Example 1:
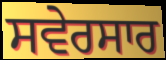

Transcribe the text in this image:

ਸਵੇਰਸਾਰ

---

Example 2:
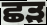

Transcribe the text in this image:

ਛੜ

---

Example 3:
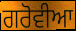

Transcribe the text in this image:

ਗਰੋਵੀਆ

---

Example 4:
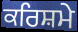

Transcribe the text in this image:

ਕਰਿਸ਼ਮੇ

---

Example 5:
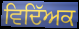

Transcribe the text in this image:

ਵਿਦਿੱਅਕ